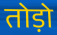
तोड़ो